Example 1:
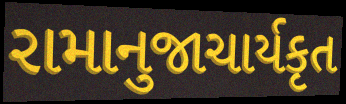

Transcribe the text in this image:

રામાનુજાચાર્યકૃત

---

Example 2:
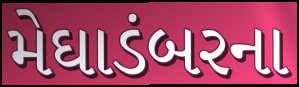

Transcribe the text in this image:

મેઘાડંબરના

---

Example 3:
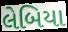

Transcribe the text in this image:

લેબિયા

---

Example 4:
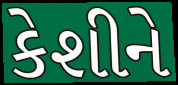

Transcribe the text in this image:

કેશીને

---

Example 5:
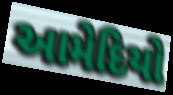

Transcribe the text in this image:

આમેદિયો